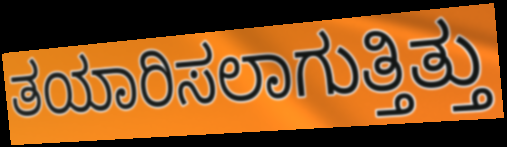
ತಯಾರಿಸಲಾಗುತ್ತಿತ್ತು